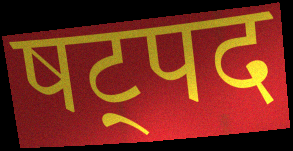
षट्पद